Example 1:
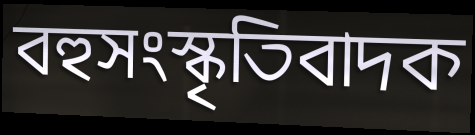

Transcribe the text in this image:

বহুসংস্কৃতিবাদক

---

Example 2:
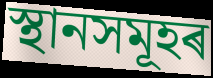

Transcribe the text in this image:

স্থানসমূহৰ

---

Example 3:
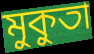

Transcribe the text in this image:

মুকুতা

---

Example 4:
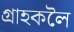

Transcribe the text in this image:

গ্ৰাহকলৈ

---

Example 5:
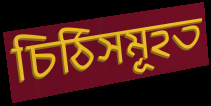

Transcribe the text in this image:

চিঠিসমূহত